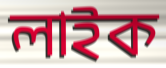
লাইক